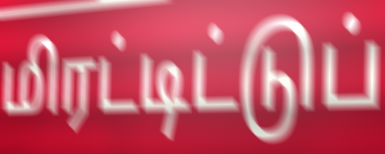
மிரட்டிட்டுப்